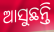
ଆସୁଛନ୍ତି